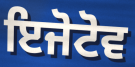
ਇਜੋਟੋਵ